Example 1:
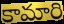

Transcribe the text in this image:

కామారి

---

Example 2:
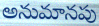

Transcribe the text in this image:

అనుమానపు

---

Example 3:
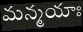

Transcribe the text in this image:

మన్మయాః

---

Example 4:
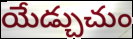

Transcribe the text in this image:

యేడ్చుచుం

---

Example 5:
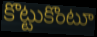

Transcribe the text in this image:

కొట్టుకొంటూ